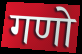
गणो